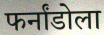
फर्नांडोला